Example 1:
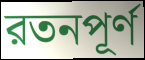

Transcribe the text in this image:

রতনপূর্ণ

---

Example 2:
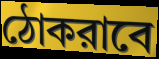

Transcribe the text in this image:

ঠোকরাবে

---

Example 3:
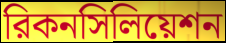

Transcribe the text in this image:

রিকনসিলিয়েশন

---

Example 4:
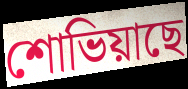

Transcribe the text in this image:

শোভিয়াছে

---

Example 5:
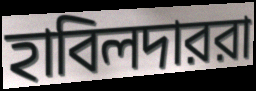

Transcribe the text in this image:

হাবিলদাররা